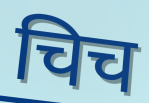
चिच